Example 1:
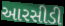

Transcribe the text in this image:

આરસીડી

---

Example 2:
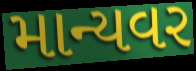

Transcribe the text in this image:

માન્યવર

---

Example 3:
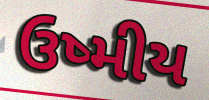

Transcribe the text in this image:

ઉષ્મીય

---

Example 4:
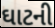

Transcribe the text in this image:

ઘાટની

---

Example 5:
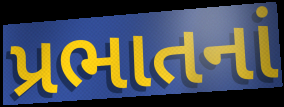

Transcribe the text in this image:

પ્રભાતનાં